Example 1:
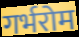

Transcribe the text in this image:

गर्भरोम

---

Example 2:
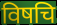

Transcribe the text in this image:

विषचि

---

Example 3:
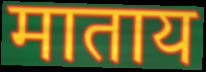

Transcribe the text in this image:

माताय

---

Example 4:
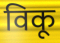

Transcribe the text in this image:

विकू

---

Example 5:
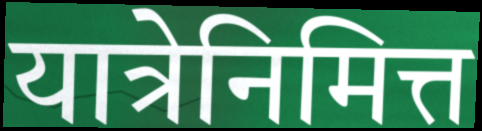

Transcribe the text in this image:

यात्रेनिमित्त